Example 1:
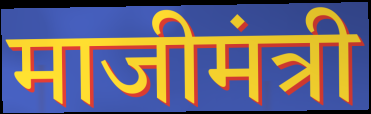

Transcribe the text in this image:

माजीमंत्री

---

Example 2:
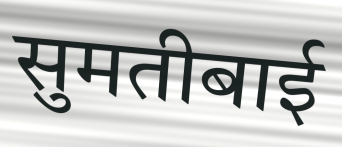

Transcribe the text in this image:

सुमतीबाई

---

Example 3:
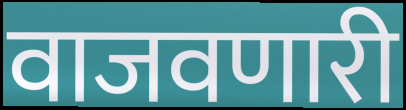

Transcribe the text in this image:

वाजवणारी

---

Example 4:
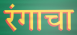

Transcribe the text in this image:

रंगाचा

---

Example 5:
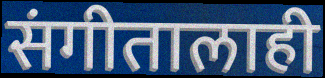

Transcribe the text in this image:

संगीतालाही